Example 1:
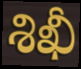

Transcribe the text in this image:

శిఖీ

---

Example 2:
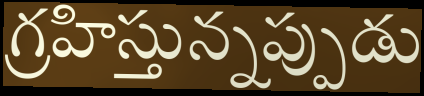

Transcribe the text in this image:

గ్రహిస్తున్నప్పుడు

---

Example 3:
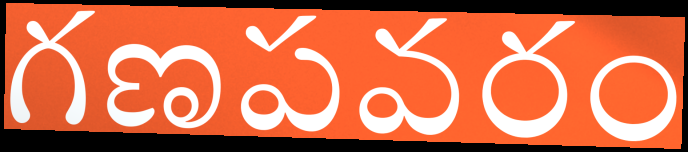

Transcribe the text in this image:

గణపవరం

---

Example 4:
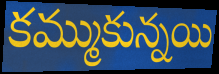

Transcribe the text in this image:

కమ్ముకున్నయి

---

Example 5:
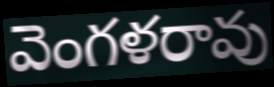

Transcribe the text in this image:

వెంగళరావు